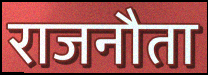
राजनौता